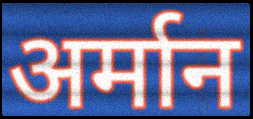
अर्मान